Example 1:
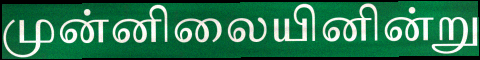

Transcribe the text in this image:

முன்னிலையினின்று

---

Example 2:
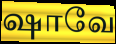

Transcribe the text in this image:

ஷாவே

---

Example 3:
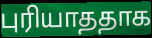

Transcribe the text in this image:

புரியாததாக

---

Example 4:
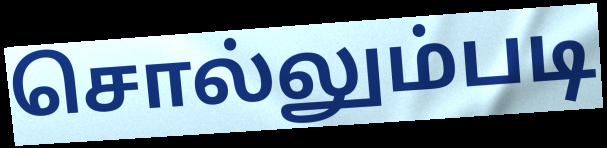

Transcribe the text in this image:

சொல்லும்படி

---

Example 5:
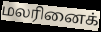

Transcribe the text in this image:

மலரினைக்